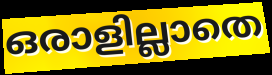
ഒരാളില്ലാതെ